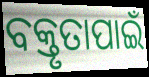
ବକ୍ତୃତାପାଇଁ